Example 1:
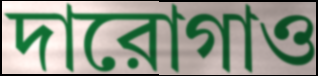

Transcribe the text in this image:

দারোগাও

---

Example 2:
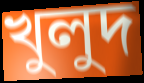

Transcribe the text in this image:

খুলুদ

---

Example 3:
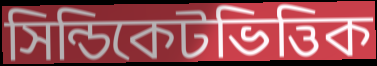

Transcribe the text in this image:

সিন্ডিকেটভিত্তিক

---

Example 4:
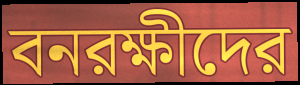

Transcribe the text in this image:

বনরক্ষীদের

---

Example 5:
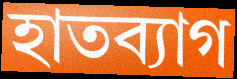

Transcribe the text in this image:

হাতব্যাগ